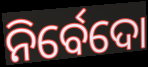
ନିର୍ବେଦୋ